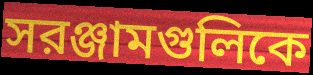
সরঞ্জামগুলিকে